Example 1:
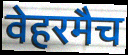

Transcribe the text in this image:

वेहरमैच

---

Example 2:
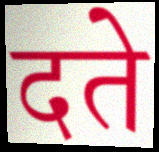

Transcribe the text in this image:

दते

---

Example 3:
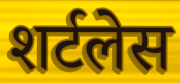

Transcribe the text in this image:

शर्टलेस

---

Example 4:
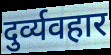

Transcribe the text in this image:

दुर्व्यवहार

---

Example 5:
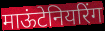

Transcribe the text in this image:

माऊंटेनियरिंग